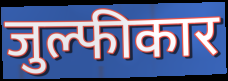
जुल्फीकार